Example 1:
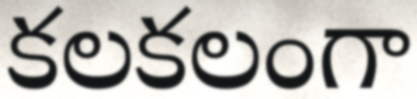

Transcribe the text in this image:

కలకలంగా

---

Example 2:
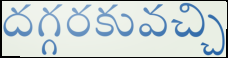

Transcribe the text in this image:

దగ్గరకువచ్చి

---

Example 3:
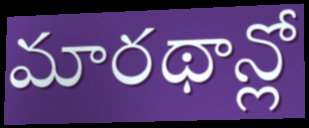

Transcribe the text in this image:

మారథాన్లో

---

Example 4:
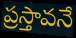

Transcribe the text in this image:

ప్రస్తావనే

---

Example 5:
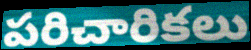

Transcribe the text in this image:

పరిచారికలు